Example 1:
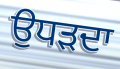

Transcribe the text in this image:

ਉਧੜਦਾ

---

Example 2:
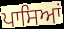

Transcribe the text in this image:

ਪਾਸਿਆਂ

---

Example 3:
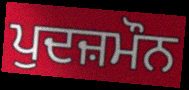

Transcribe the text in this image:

ਪੁਦਜ਼ਮੌਨ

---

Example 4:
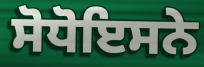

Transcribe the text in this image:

ਸੋਧੋਇਸਨੇ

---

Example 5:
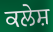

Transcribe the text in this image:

ਕਲੇਸ਼